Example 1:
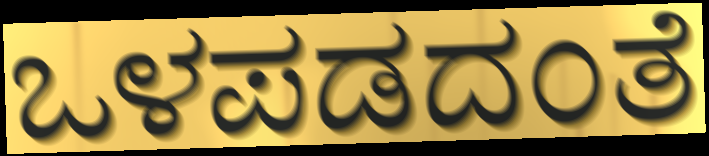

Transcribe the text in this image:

ಒಳಪಡದಂತೆ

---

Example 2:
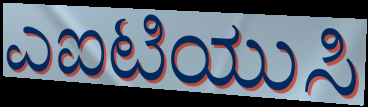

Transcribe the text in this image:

ಎಐಟಿಯುಸಿ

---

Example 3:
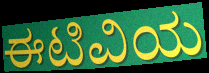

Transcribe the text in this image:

ಈಟಿವಿಯ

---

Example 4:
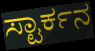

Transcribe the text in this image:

ಸ್ಟಾರ್ಕನ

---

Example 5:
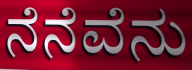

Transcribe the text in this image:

ನೆನೆವೆನು